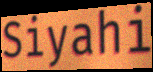
Siyahi